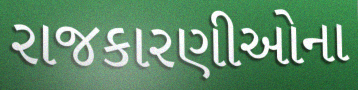
રાજકારણીઓના